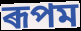
ৰূপম